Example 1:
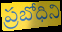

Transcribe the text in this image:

ప్రబోధిని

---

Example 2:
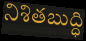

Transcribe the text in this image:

నిశితబుద్ధి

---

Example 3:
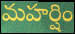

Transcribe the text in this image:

మహర్షిం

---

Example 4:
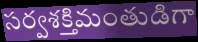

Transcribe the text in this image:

సర్వశక్తిమంతుడిగా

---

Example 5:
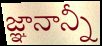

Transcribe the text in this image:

జ్ఞానాన్నీ